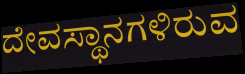
ದೇವಸ್ಥಾನಗಳಿರುವ